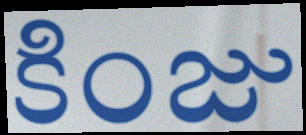
కింజు